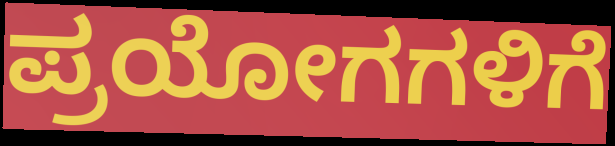
ಪ್ರಯೋಗಗಳಿಗೆ